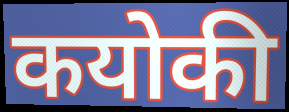
कयोकी